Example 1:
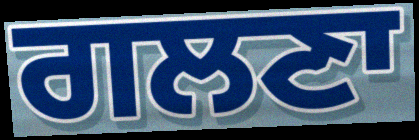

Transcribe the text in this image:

ਗਲਣਾ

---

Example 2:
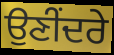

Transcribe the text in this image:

ਉਣੀਂਦਰੇ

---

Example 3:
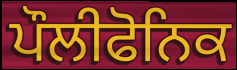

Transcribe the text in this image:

ਪੌਲੀਫੋਨਿਕ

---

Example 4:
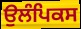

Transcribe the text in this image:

ਉਲੰਪਿਕਸ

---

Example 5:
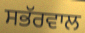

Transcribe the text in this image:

ਸਭੱਰਵਾਲ